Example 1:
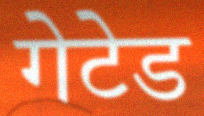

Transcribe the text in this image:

गेटेड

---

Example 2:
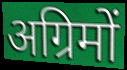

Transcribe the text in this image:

अग्रिमों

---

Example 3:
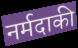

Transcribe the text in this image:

नर्मदाकी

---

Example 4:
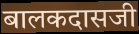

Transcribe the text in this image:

बालकदासजी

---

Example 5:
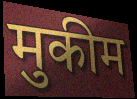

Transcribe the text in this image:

मुकीम